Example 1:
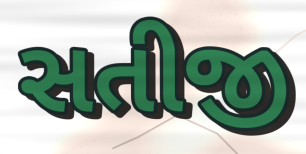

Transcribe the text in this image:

સતીજી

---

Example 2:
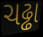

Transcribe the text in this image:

ચઢ્ઢા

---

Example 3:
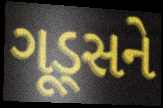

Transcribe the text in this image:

ગૂડ્સને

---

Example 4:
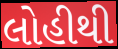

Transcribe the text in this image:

લોહીથી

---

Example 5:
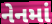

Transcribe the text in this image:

નેનમાં